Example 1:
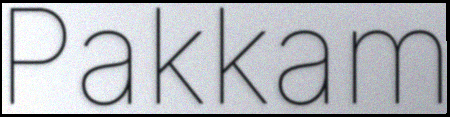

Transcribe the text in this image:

Pakkam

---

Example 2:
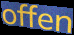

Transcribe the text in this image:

offen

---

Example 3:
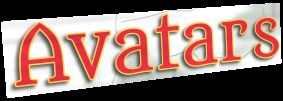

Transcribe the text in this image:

Avatars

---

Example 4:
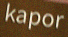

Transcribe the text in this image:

kapor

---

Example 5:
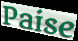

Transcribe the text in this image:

Paise